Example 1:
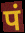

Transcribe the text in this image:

पं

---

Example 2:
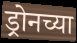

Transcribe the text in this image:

ड्रोनच्या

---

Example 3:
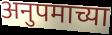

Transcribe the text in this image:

अनुपमाच्या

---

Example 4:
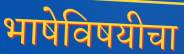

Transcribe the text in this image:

भाषेविषयीचा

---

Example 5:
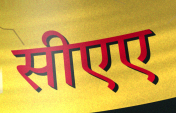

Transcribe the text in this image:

सीएए